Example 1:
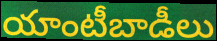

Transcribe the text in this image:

యాంటీబాడీలు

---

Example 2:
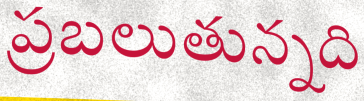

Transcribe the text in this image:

ప్రబలుతున్నది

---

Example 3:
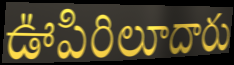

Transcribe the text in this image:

ఊపిరిలూదారు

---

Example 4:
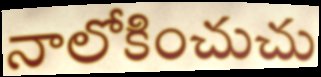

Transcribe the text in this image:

నాలోకించుచు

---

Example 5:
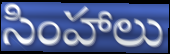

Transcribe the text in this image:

సింహాలు